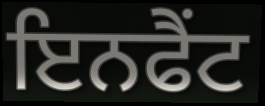
ਇਨਫੈਂਟ